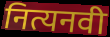
नित्यनवी